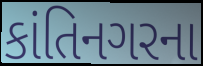
કાંતિનગરના